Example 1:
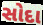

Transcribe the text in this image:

સોદા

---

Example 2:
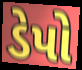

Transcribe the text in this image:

ડેપો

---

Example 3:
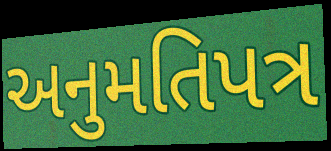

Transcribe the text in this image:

અનુમતિપત્ર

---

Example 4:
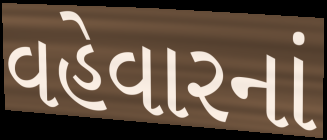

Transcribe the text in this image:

વહેવારનાં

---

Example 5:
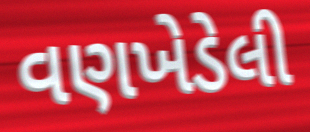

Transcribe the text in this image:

વણખેડેલી